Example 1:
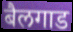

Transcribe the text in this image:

बैलगाड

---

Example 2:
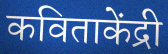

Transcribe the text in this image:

कविताकेंद्री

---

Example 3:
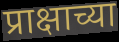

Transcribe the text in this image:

प्राक्षाच्या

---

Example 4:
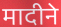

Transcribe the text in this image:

मादीने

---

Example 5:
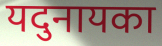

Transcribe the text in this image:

यदुनायका